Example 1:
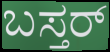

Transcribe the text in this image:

ಬಸ್ತರ್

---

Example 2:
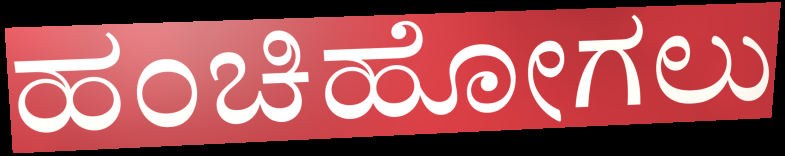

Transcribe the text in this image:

ಹಂಚಿಹೋಗಲು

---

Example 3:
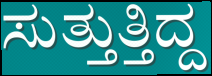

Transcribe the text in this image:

ಸುತ್ತುತ್ತಿದ್ದ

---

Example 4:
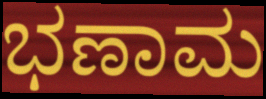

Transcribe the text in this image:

ಭಣಾಮ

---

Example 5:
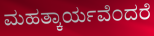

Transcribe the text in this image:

ಮಹತ್ಕಾರ್ಯವೆಂದರೆ